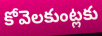
కోవెలకుంట్లకు